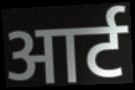
आर्ट